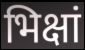
भिक्षां